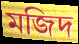
মজিদ